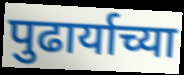
पुढार्याच्या